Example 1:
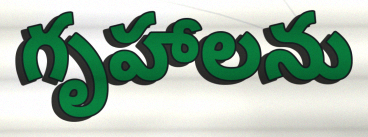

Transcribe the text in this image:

గృహాలను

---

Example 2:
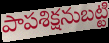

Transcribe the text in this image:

పాపశిక్షనుబట్టి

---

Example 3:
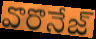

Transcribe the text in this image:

వొరొనేజ్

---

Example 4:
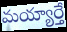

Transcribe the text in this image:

మయ్యార్తే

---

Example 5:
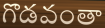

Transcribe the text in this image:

గొడవంతా